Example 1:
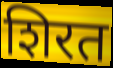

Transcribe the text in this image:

शिरत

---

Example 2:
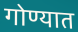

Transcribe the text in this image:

गोण्यात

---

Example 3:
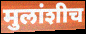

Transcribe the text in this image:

मुलांशीच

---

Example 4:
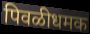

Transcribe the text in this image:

पिवळीधमक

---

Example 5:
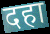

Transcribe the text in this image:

दहा